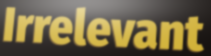
Irrelevant